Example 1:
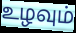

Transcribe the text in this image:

உழவும்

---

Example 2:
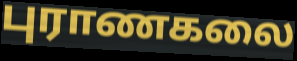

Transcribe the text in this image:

புராணகலை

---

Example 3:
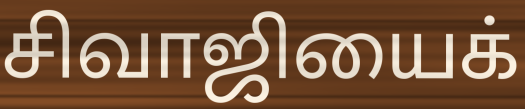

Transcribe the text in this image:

சிவாஜியைக்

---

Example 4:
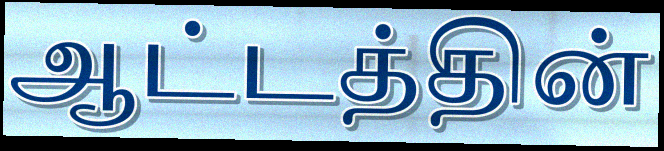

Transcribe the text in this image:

ஆட்டத்தின்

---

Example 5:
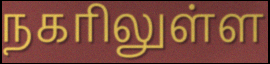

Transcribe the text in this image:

நகரிலுள்ள